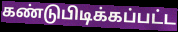
கண்டுபிடிக்கப்பட்ட